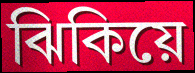
ঝিকিয়ে